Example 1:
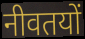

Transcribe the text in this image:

नीवतयों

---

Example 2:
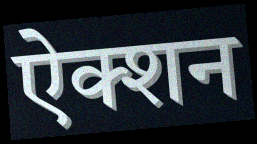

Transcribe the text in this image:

ऐक्‍शन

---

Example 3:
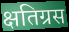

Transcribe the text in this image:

क्षतिग्रस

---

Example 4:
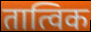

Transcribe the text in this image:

तात्विक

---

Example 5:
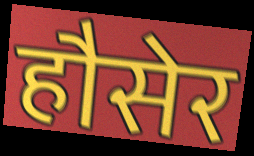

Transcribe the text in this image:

हौसेर